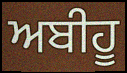
ਅਬੀਹੂ